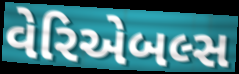
વેરિએબલ્સ